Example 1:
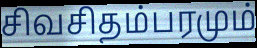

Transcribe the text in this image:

சிவசிதம்பரமும்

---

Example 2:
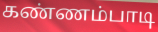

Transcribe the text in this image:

கண்ணம்பாடி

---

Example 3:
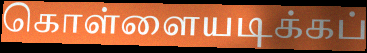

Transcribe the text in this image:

கொள்ளையடிக்கப்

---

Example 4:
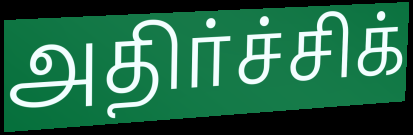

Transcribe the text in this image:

அதிர்ச்சிக்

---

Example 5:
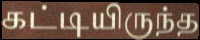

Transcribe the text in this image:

கட்டியிருந்த